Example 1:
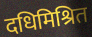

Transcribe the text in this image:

दधिमिश्रित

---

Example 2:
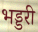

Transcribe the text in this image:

भड्डरी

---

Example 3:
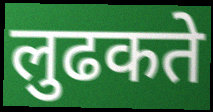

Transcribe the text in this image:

लुढकते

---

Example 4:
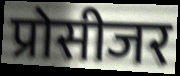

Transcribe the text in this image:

प्रोसीजर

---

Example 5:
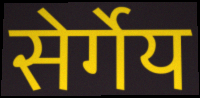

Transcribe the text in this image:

सेर्गेय